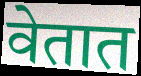
वेतात